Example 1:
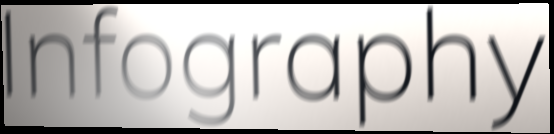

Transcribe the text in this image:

Infography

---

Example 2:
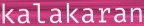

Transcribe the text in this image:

kalakaran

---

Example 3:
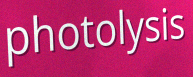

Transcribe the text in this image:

photolysis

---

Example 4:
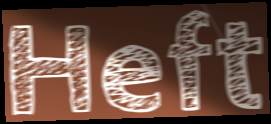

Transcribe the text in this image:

Heft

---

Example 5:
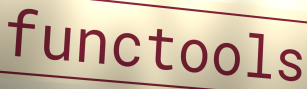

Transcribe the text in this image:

functools